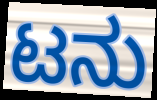
ಟನು